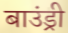
बाउंड्री